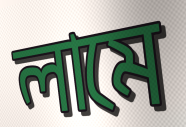
লামে